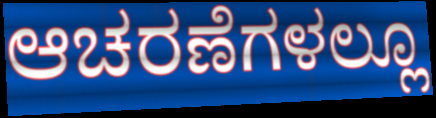
ಆಚರಣೆಗಳಲ್ಲೂ